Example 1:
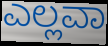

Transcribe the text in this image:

ಎಲ್ಲವಾ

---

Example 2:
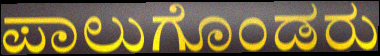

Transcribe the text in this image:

ಪಾಲುಗೊಂಡರು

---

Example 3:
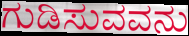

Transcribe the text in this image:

ಗುಡಿಸುವವನು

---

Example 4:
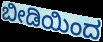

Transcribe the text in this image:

ಬೀಡಿಯಿಂದ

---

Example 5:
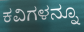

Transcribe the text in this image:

ಕವಿಗಳನ್ನೂ